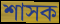
শাসক